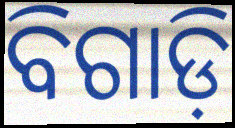
ବିଗାଡ଼ି